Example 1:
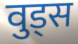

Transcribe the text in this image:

वुड्स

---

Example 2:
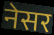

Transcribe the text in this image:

नेसर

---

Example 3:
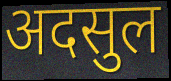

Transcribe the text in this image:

अदसुल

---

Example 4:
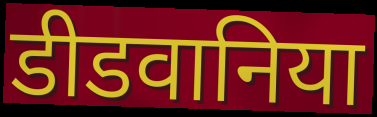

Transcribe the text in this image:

डीडवानिया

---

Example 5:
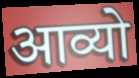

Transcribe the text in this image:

आव्यो